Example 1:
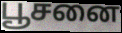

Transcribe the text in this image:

பூசனை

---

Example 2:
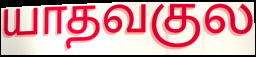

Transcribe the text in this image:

யாதவகுல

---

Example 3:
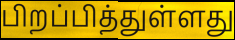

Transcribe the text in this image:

பிறப்பித்துள்ளது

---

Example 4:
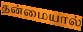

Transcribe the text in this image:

தன்மையால்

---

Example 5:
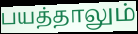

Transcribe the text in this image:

பயத்தாலும்